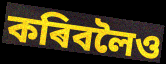
কৰিবলৈও